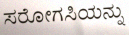
ಸರೋಗಸಿಯನ್ನು